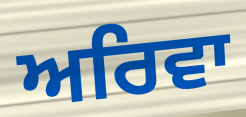
ਅਰਿਵਾ